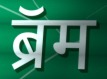
ब्रॅम